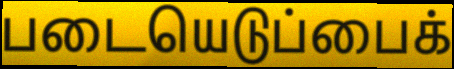
படையெடுப்பைக்